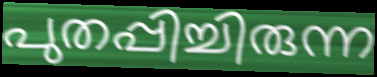
പുതപ്പിച്ചിരുന്ന